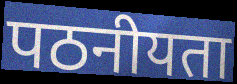
पठनीयता